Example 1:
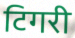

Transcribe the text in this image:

टिगरी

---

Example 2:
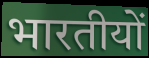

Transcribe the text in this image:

भारतीयों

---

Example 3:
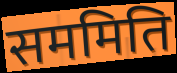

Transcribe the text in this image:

सममिति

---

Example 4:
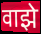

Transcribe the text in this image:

वाझे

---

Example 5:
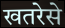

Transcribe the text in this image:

खतरेसे